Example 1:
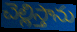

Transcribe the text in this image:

చెల్లిస్తాను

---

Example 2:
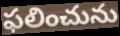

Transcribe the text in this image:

ఫలించును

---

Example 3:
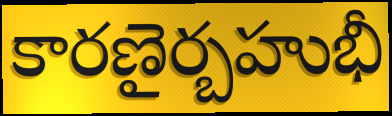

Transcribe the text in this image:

కారణైర్బహుభీ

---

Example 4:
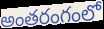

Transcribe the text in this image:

అంతరంగంలో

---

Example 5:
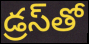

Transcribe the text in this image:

డ్రస్‌తో